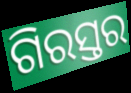
ଗିରସ୍ତର